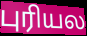
புரியல